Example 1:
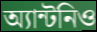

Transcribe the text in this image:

অ্যান্টনিও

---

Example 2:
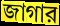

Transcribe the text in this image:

জাগার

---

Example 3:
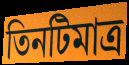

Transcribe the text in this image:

তিনটিমাত্র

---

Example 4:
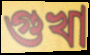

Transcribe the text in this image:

গুখা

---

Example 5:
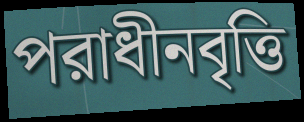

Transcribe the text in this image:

পরাধীনবৃত্তি